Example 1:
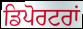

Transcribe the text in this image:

ਡਿਪੋਰਟਰਾਂ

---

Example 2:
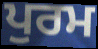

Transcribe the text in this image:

ਪੁਰਮ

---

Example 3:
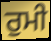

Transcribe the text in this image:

ਰੁਮੀ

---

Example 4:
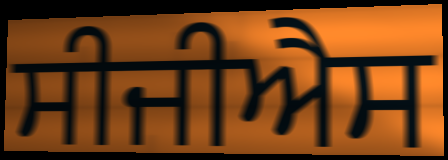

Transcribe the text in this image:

ਸੀਜੀਐਸ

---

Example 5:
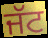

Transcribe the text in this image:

ਜੱਟ